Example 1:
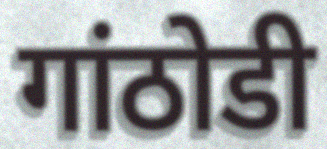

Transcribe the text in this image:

गांठोडी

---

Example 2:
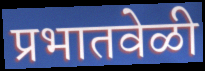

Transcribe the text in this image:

प्रभातवेळी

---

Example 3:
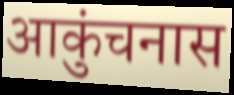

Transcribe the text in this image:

आकुंचनास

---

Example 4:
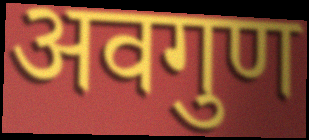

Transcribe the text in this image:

अवगुण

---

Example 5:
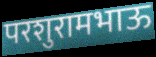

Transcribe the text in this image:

परशुरामभाऊ